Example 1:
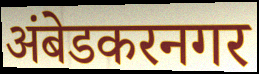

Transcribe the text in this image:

अंबेडकरनगर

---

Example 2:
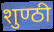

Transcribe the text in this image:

शुण्ठी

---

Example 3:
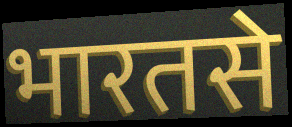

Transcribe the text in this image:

भारतसे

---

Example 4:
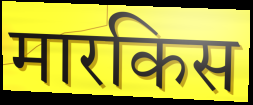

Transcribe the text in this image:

मारकिस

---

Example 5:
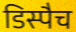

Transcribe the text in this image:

डिस्‍पैच